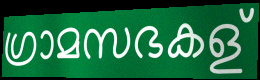
ഗ്രാമസഭകള്